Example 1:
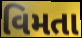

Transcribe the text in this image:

વિમતા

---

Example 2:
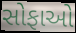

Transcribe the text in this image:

સોફાઓ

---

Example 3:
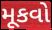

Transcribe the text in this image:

મૂકવો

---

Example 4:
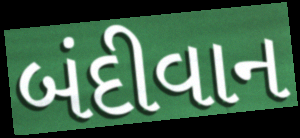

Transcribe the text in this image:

બંદીવાન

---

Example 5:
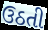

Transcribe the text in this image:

ઉઠતી